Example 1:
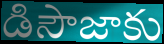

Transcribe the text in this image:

డిసౌజాకు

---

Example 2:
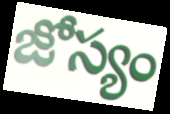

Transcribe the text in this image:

జోస్యం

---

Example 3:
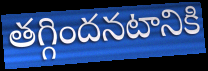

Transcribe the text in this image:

తగ్గిందనటానికి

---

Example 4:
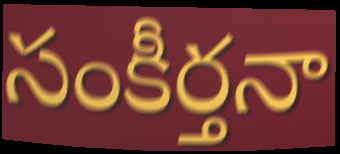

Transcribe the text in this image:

సంకీర్తనా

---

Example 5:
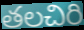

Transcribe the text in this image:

తలచిరి